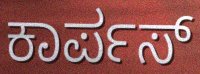
ಕಾರ್ಪಸ್